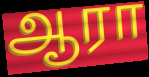
ஆரா